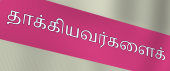
தாக்கியவர்களைக்